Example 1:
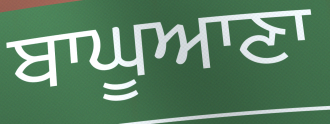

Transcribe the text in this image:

ਬਾਘੂਆਣਾ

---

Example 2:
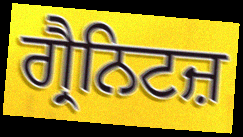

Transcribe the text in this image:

ਗ੍ਰੈਨਿਟਜ਼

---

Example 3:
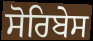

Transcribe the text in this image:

ਸੋਰਿਬੇਸ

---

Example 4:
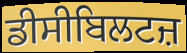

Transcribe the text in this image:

ਡੀਸੀਬਿਲਟਜ਼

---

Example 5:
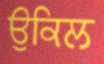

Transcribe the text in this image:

ਉਕਿਲ